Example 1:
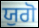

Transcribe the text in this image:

ਯੁਗੋ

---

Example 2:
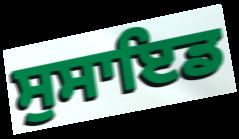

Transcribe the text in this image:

ਸੁਸਾਇਡ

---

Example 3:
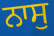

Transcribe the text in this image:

ਨਾਸੁ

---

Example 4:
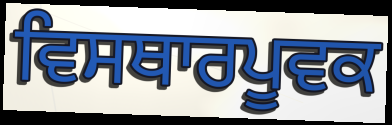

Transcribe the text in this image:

ਵਿਸਥਾਰਪੂਵਕ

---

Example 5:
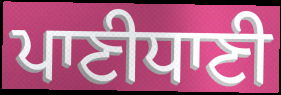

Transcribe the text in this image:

ਪਾਣੀਧਾਣੀ